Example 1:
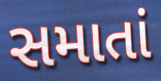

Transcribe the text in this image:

સમાતાં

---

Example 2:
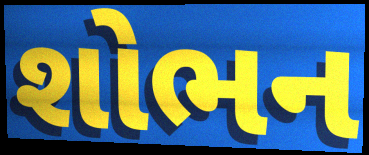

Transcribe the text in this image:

શોભન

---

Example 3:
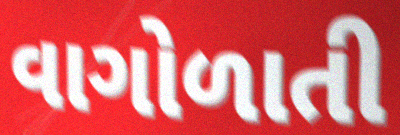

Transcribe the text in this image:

વાગોળાતી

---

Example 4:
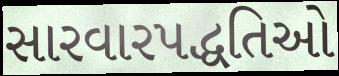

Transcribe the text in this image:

સારવારપદ્ધતિઓ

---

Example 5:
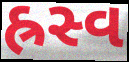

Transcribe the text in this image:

હ્રસ્વ